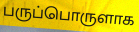
பருப்பொருளாக